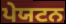
ਪੇਯਟਨ